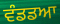
ਵੰਡਡਆ